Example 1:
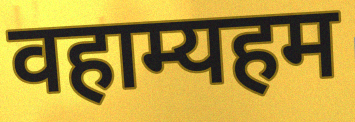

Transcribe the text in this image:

वहाम्यहम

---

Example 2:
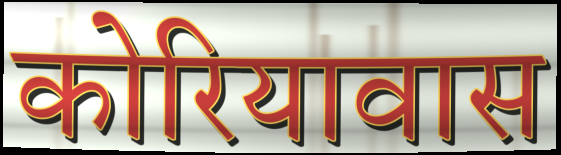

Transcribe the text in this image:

कोरियावास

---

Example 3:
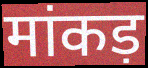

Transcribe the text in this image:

मांकड़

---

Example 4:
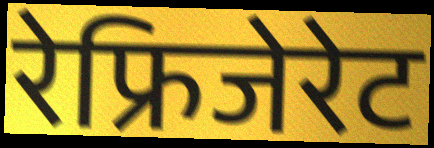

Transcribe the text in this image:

रेफ्रिजेरेट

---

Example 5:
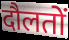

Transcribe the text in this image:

दौलतों